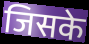
जिसके